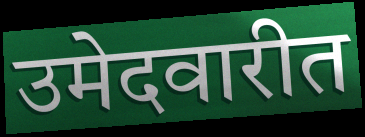
उमेदवारीत